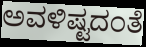
ಅವಳಿಷ್ಟದಂತೆ